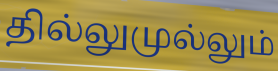
தில்லுமுல்லும்